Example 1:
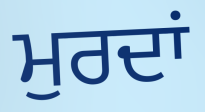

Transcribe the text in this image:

ਮੁਰਦਾਂ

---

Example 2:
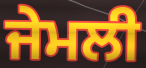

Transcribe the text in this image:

ਜੇਮਲੀ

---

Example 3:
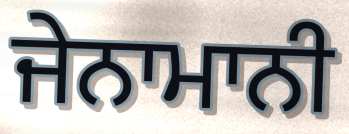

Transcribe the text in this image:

ਜੇਨਾਮਾਨੀ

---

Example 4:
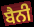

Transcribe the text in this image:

ਬੈਨੀ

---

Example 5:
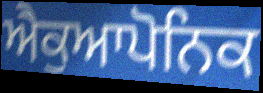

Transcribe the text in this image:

ਐਕੁਆਪੋਨਿਕ